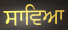
ਸਾਵਿਆ